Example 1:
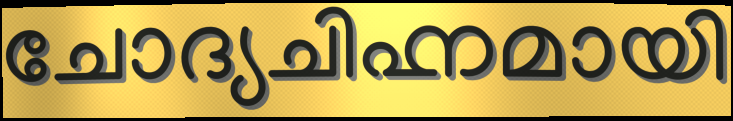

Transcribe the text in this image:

ചോദ്യചിഹ്നമായി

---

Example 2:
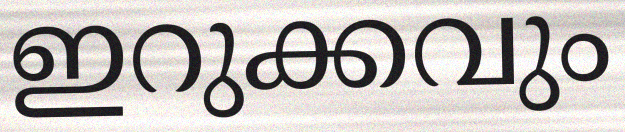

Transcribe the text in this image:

ഇറുക്കവും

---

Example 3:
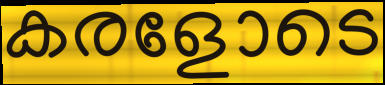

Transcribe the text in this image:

കരളോടെ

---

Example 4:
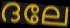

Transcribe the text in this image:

ദലേ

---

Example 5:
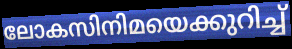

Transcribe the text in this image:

ലോകസിനിമയെക്കുറിച്ച്